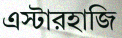
এস্টারহাজি